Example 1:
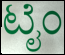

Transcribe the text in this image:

ಟೈಂ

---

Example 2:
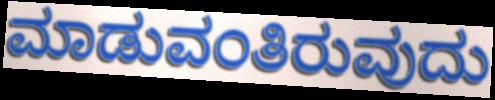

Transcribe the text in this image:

ಮಾಡುವಂತಿರುವುದು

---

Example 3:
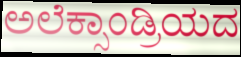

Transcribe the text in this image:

ಅಲೆಕ್ಸಾಂಡ್ರಿಯದ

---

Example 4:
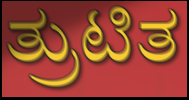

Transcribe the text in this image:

ತ್ರುಟಿತ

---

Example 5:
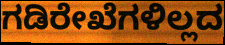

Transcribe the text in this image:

ಗಡಿರೇಖೆಗಳಿಲ್ಲದ